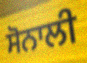
ਸੋਨਾਲੀ